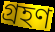
গ্রহণ